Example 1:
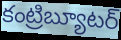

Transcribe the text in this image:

కంట్రిబ్యూటర్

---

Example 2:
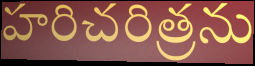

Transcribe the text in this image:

హరిచరిత్రను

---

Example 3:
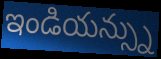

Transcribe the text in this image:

ఇండియన్స్ను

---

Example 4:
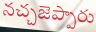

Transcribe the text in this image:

నచ్చజెప్పారు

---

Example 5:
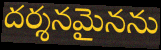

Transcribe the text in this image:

దర్శనమైనను